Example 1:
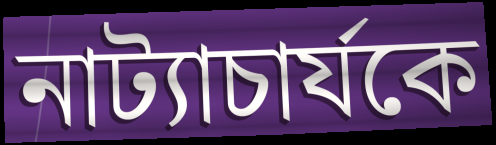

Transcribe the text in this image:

নাট্যাচার্যকে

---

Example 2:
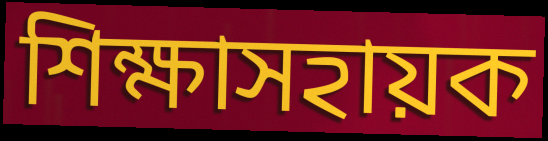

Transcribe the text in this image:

শিক্ষাসহায়ক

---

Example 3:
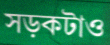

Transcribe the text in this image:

সড়কটাও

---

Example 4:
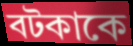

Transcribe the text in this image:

বটকাকে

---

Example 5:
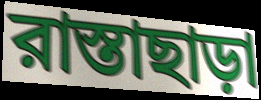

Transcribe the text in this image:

রাস্তাছাড়া